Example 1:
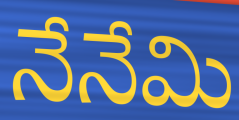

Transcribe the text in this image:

నేనేమి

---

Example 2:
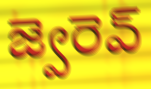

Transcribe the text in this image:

జ్వెరెవ్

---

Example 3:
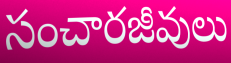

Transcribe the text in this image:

సంచారజీవులు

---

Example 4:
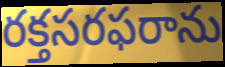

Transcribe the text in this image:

రక్తసరఫరాను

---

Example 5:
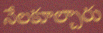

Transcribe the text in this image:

నేలకూల్చారు